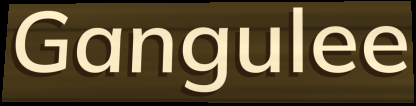
Gangulee